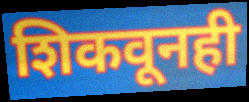
शिकवूनही